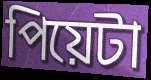
পিয়েটা